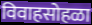
विवाहसोहळा